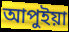
আপুইয়া